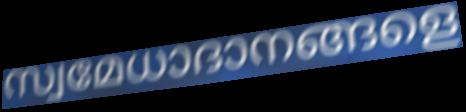
സ്വമേധാദാനങ്ങളെ